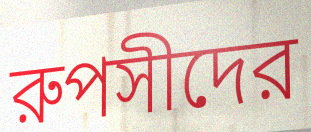
রুপসীদের